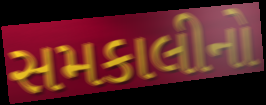
સમકાલીનો